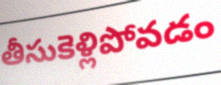
తీసుకెళ్లిపోవడం